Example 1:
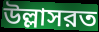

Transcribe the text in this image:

উল্লাসরত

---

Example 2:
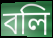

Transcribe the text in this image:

বলি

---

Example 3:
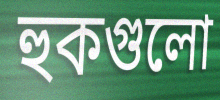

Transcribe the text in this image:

হুকগুলো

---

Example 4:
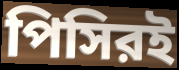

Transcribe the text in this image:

পিসিরই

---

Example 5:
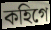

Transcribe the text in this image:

কহিগে